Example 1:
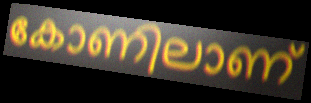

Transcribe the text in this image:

കോണിലാണ്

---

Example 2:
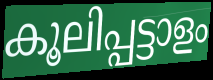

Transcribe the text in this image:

കൂലിപ്പട്ടാളം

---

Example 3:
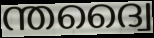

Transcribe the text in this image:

ന്തദ്വൈ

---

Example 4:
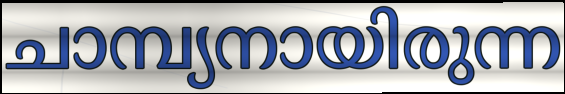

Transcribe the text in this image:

ചാമ്പ്യനായിരുന്ന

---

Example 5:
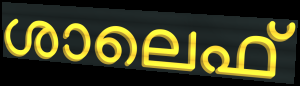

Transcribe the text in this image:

ശാലെഫ്